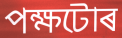
পক্ষটোৰ